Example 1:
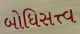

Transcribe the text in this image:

બોધિસત્ત્વ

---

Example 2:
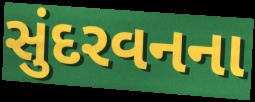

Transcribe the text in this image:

સુંદરવનના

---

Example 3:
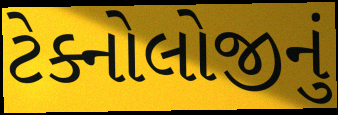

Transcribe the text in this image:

ટેક્નોલોજીનું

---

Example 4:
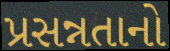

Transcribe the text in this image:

પ્રસન્નતાનો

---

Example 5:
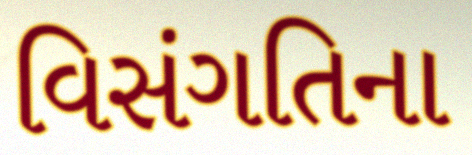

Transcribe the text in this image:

વિસંગતિના